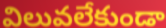
విలువలేకుండా